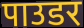
पाउडर